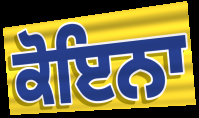
ਕੋਇਨਾ